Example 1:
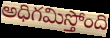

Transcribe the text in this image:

అధిగమిస్తోంది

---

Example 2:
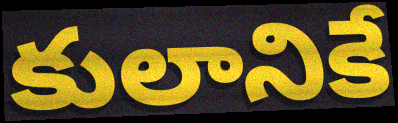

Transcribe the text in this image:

కులానికే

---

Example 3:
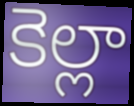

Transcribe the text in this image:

కెల్లా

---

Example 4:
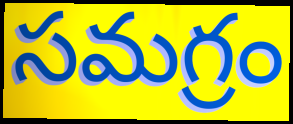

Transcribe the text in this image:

సమగ్రం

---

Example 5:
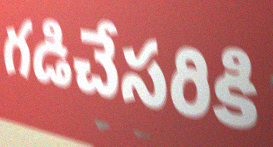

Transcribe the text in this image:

గడిచేసరికి